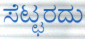
ಸೆಟ್ಟರದು